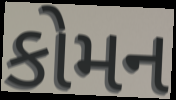
કોમન